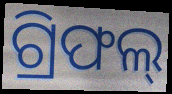
ଗ୍ରିଫଲ୍